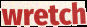
wretch